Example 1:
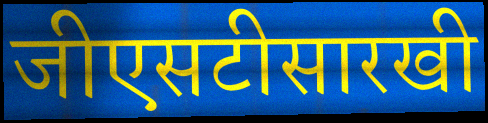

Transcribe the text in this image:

जीएसटीसारखी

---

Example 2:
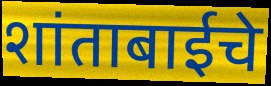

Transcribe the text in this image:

शांताबाईचे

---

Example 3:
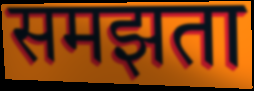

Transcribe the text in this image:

समझता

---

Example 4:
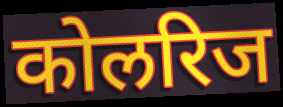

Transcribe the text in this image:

कोलरिज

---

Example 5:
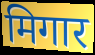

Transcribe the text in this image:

मिगार